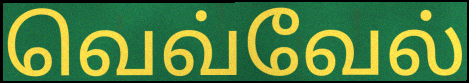
வெவ்வேல்